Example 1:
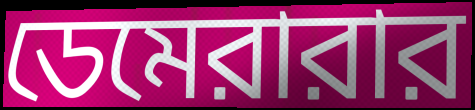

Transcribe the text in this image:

ডেমেরারার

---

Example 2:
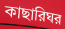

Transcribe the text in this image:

কাছারিঘর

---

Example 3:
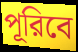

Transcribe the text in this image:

পূরিবে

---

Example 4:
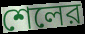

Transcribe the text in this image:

শেলের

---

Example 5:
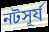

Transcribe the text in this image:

নটসূর্য